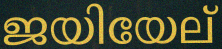
ജയിയേല്